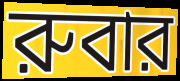
রুবার